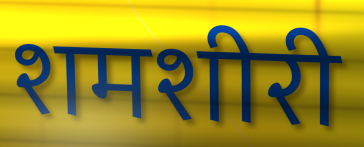
शमशीरी